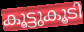
കൂട്ടുകൂടി